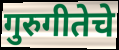
गुरुगीतेचे